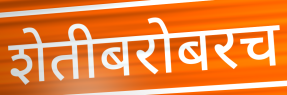
शेतीबरोबरच